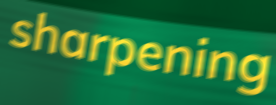
sharpening